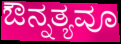
ಔನ್ನತ್ಯವೂ